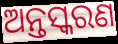
ଅନ୍ତସ୍କରଣ